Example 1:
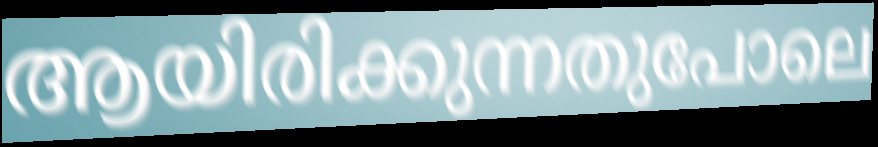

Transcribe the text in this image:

ആയിരിക്കുന്നതുപോലെ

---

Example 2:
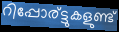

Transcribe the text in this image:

റിപ്പോര്ട്ടുകളുണ്ട്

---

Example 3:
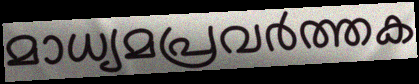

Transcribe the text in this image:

മാധ്യമപ്രവർത്തക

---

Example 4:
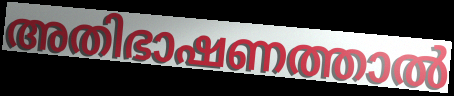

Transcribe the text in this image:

അതിഭാഷണത്താൽ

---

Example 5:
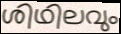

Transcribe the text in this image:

ശിഥിലവും